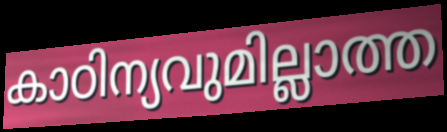
കാഠിന്യവുമില്ലാത്ത